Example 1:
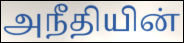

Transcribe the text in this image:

அநீதியின்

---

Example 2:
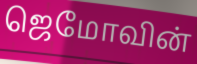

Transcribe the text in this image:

ஜெமோவின்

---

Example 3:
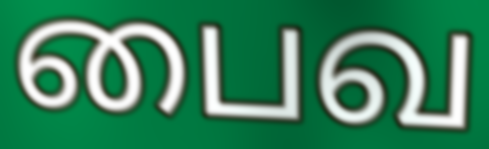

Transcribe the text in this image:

பைவ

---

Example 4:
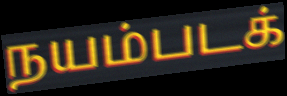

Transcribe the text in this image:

நயம்படக்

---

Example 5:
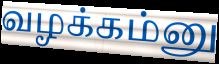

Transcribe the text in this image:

வழக்கம்னு